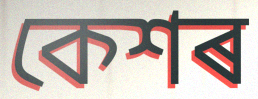
কেশৰ